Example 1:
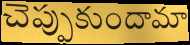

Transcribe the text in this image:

చెప్పుకుందామా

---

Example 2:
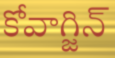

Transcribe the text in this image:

కోవాగ్జిన్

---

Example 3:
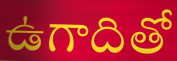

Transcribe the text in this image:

ఉగాదితో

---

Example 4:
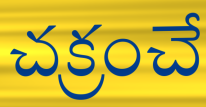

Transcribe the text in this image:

చక్రంచే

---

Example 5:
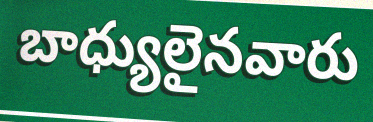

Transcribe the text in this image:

బాధ్యులైనవారు